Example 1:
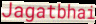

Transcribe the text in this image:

Jagatbhai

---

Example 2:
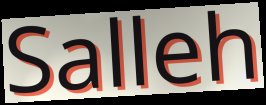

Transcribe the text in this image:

Salleh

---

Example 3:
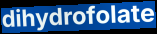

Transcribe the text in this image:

dihydrofolate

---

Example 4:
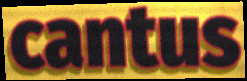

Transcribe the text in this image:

cantus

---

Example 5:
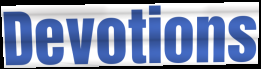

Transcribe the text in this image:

Devotions